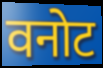
वनोट